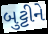
બુટ્ટીને